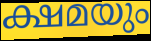
ക്ഷമയും